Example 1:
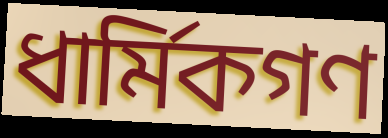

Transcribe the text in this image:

ধার্মিকগণ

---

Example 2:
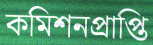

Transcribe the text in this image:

কমিশনপ্রাপ্তি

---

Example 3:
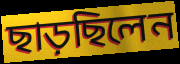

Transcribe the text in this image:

ছাড়ছিলেন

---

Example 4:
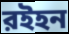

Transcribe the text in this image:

রইহন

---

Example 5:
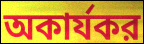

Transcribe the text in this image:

অকার্যকর